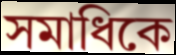
সমাধিকে